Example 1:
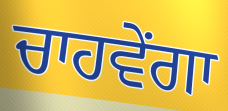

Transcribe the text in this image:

ਚਾਹਵੇਂਗਾ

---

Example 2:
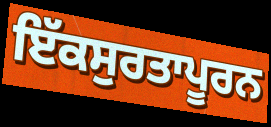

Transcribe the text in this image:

ਇੱਕਸੁਰਤਾਪੂਰਨ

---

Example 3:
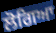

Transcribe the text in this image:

ਲੋਗਿਆ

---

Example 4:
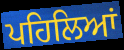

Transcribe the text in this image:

ਪਹਿਲਿਆਂ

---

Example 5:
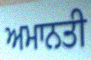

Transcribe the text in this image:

ਅਮਾਨਤੀ